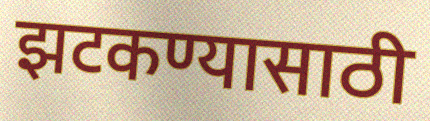
झटकण्यासाठी